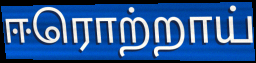
ஈரொற்றாய்